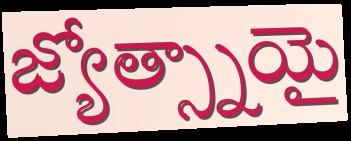
జ్యోత్స్నాయై